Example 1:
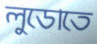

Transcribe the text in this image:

লুডোতে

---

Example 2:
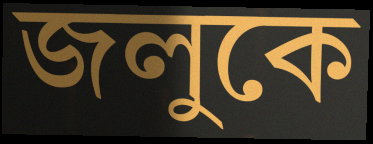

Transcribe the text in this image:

জলুকে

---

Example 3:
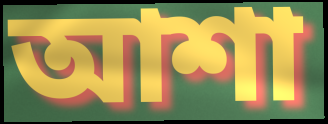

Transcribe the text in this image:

আশা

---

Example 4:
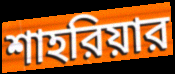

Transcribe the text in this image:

শাহরিয়ার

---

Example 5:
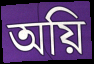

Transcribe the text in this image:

অয়ি